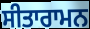
ਸੀਤਾਰਾਮਨ